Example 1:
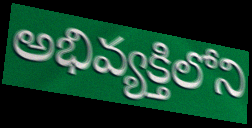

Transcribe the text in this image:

అభివ్యక్తిలోని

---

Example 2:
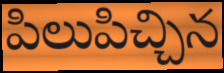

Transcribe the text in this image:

పిలుపిచ్చిన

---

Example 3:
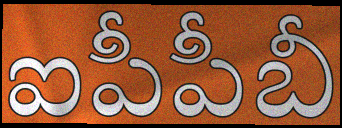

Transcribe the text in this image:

ఐపీపీబీ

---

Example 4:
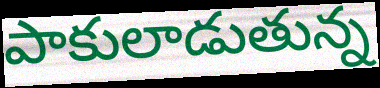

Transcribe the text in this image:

పాకులాడుతున్న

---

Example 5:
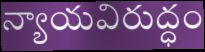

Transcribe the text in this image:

న్యాయవిరుద్ధం